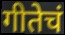
गीतेचं